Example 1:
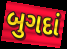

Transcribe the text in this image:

બુગદાં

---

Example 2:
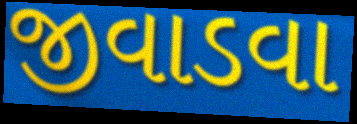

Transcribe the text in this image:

જીવાડવા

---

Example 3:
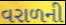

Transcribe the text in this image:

વરાળની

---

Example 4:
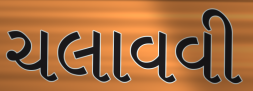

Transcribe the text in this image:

ચલાવવી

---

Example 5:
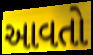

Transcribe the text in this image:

આવતો